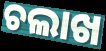
ଚଲାଖ